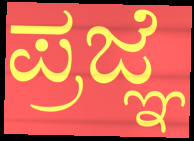
ಪ್ರಜ್ಞೆ